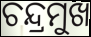
ଚନ୍ଦ୍ରମୁଖ